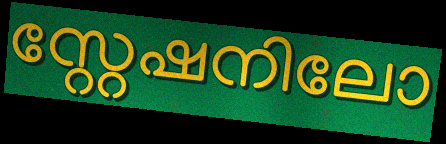
സ്റ്റേഷനിലോ